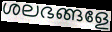
ശലഭങ്ങളേ